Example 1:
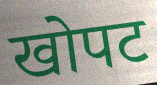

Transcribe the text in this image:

खोपट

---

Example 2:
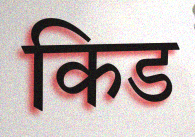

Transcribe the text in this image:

किड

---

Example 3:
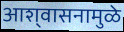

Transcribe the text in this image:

आश्वासनामुळे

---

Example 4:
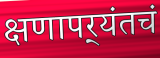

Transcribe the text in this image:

क्षणापर्यंतचं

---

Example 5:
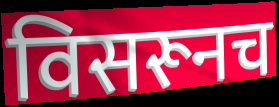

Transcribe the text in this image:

विसरूनच